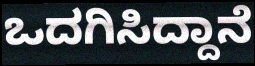
ಒದಗಿಸಿದ್ದಾನೆ